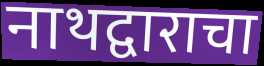
नाथद्वाराचा